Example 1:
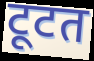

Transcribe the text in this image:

टूटत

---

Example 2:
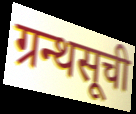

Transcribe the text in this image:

ग्रन्थसूची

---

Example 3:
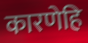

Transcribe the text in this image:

कारणेहि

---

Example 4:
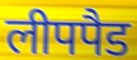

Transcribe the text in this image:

लीपपैड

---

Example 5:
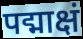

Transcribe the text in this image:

पद्माक्षं